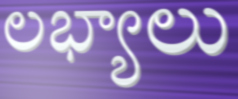
లభ్యాలు